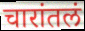
चारांतलं